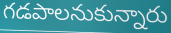
గడపాలనుకున్నారు